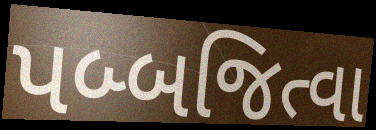
પબ્બજિત્વા